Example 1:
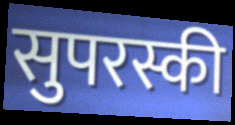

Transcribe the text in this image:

सुपरस्की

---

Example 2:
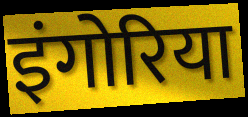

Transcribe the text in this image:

इंगोरिया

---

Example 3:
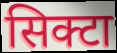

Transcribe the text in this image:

सिक्टा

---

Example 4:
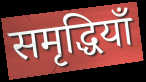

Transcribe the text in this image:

समृद्धियाँ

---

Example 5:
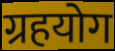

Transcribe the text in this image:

ग्रहयोग